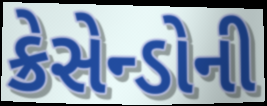
ક્રેસેન્ડોની